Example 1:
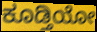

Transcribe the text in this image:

ಕೂಡ್ತಿಯೋ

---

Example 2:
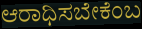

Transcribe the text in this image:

ಆರಾಧಿಸಬೇಕೆಂಬ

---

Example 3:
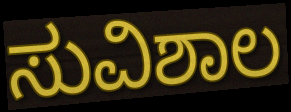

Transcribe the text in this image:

ಸುವಿಶಾಲ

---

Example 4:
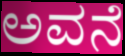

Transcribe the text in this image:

ಅವನೆ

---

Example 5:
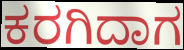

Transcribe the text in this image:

ಕರಗಿದಾಗ